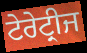
ਟੇਰੇਟ੍ਰੀਜ